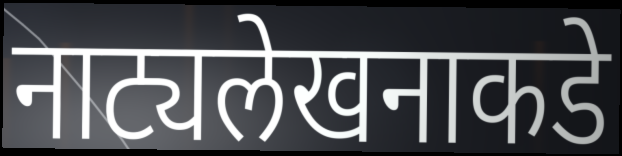
नाट्यलेखनाकडे